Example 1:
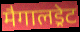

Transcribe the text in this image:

मैगालड्रेट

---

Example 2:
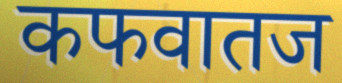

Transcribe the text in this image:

कफवातज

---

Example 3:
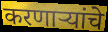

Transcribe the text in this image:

करणाऱ्यांचे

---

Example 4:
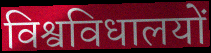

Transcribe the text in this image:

विश्वविधालयों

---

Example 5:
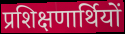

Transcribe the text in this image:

प्रशिक्षणार्थियों